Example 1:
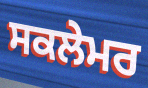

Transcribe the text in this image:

ਸਕਲੇਮਰ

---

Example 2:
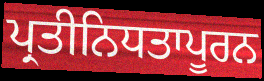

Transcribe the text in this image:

ਪ੍ਰਤੀਨਿਧਤਾਪੂਰਨ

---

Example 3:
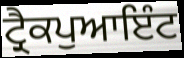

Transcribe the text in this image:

ਟ੍ਰੈਕਪੁਆਇੰਟ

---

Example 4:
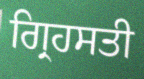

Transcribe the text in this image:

ਗ੍ਰਿਹਸਤੀ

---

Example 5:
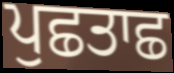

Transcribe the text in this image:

ਪੁਛਤਾਛ